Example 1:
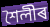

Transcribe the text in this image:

শৈলীৰ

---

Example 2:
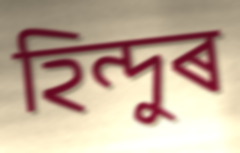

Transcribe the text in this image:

হিন্দুৰ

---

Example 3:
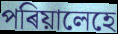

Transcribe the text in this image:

পৰিয়ালেহে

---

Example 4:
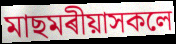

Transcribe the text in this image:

মাছমৰীয়াসকলে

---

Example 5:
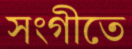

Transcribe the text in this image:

সংগীতে